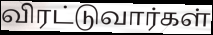
விரட்டுவார்கள்